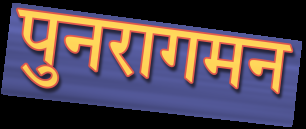
पुनरागमन